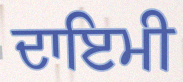
ਦਾਇਮੀ